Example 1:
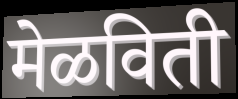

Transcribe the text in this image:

मेळविती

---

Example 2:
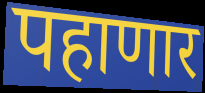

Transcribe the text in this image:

पहाणार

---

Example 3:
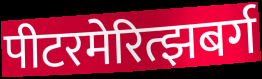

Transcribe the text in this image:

पीटरमेरित्झबर्ग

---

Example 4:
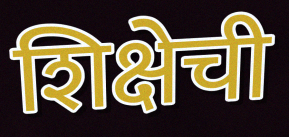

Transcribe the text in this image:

शिक्षेची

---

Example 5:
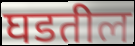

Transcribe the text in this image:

घडतील